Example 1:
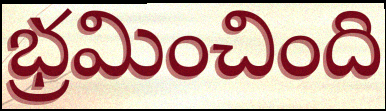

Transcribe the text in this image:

భ్రమించింది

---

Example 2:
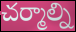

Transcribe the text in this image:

చర్మాల్ని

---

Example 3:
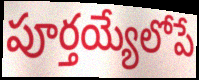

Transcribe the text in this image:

పూర్తయ్యేలోపే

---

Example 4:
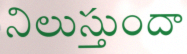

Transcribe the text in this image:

నిలుస్తుందా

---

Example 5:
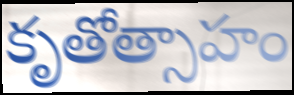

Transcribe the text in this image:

కృతోత్సాహం